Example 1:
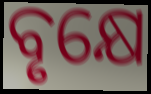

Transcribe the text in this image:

ବୃକ୍ଷେ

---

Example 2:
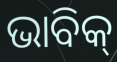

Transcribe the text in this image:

ଭାବିକ୍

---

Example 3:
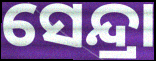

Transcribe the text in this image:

ସେନ୍ଦ୍ରା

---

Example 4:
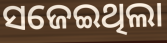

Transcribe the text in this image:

ସଜେଇଥିଲା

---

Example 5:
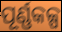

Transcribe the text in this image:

ପୂର୍ଣ୍ଣକଳ୍ପ